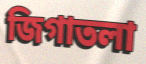
জিগাতলা